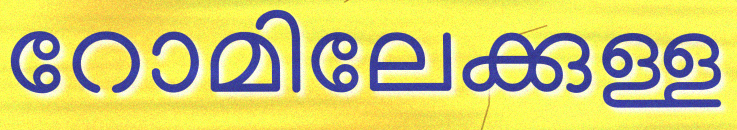
റോമിലേക്കുള്ള